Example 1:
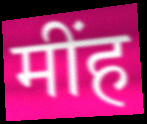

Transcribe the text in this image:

मींह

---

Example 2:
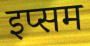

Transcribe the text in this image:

इप्सम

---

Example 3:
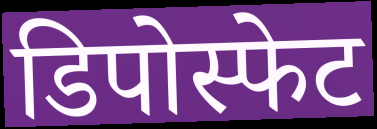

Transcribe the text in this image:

डिपोस्फेट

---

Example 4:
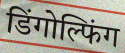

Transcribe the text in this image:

डिंगोल्फिंग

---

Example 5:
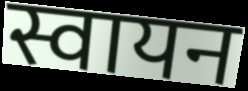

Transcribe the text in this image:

स्वायन